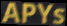
APYs